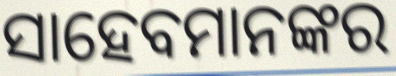
ସାହେବମାନଙ୍କର